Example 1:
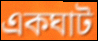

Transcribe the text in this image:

একঘাট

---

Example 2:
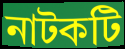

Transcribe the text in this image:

নাটকটি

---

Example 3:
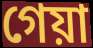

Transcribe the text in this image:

গেয়া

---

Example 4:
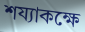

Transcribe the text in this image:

শয্যাকক্ষে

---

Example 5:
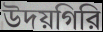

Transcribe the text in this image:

উদয়গিরি